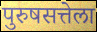
पुरुषसत्तेला